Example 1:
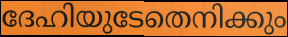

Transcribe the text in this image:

ദേഹിയുടേതെനിക്കും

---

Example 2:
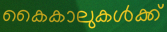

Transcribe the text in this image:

കൈകാലുകൾക്ക്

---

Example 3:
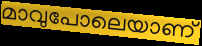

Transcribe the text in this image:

മാവുപോലെയാണ്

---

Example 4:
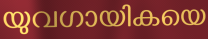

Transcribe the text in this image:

യുവഗായികയെ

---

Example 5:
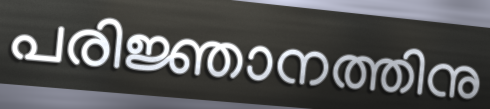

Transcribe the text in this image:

പരിജ്ഞാനത്തിനു